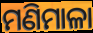
ମଣିମାଳା